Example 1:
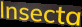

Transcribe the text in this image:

Insecta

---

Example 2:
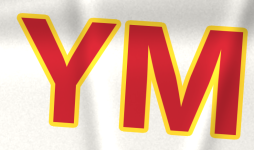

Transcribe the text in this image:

YM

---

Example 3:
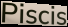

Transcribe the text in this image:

Piscis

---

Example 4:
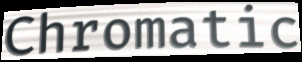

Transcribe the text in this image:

Chromatic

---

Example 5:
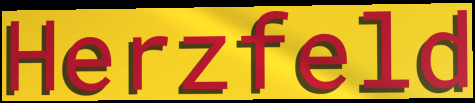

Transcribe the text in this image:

Herzfeld